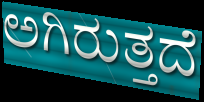
ಅಗಿರುತ್ತದೆ